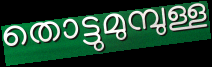
തൊട്ടുമുമ്പുള്ള